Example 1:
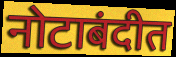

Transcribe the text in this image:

नोटाबंदीत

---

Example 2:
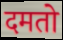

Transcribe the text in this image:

दमतो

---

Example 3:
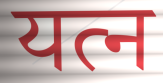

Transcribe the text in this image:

यत्न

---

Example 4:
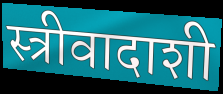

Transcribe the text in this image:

स्त्रीवादाशी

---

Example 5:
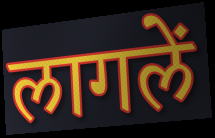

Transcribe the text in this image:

लागलें